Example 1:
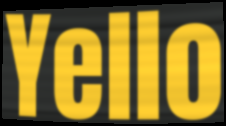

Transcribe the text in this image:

Yello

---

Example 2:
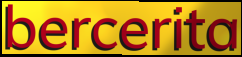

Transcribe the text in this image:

bercerita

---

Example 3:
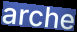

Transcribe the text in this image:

arche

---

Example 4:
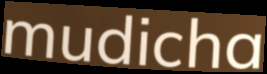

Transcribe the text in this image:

mudicha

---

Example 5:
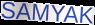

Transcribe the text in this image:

SAMYAK